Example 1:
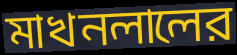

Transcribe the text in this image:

মাখনলালের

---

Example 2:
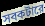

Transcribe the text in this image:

সবকটারে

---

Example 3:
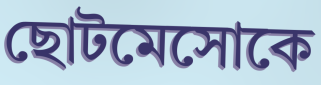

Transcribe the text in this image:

ছোটমেসোকে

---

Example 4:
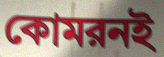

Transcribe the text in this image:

কোমরনই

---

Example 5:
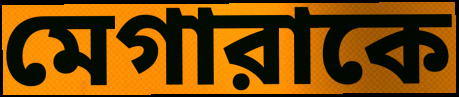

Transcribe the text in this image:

মেগারাকে